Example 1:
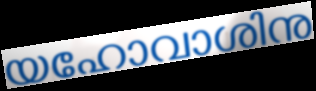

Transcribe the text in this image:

യഹോവാശിനു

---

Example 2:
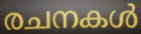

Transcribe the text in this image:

രചനകൾ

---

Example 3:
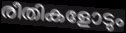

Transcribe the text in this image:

രീതികളോടും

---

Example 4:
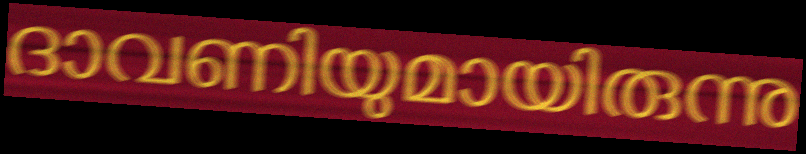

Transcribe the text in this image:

ദാവണിയുമായിരുന്നു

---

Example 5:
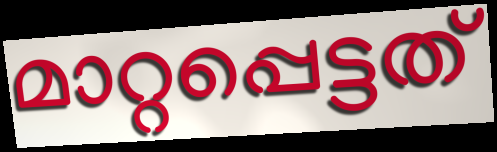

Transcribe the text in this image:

മാറ്റപ്പെട്ടത്